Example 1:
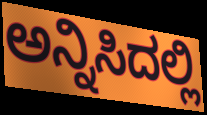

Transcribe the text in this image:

ಅನ್ನಿಸಿದಲ್ಲಿ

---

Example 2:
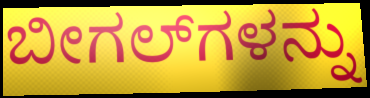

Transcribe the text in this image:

ಬೀಗಲ್‌ಗಳನ್ನು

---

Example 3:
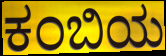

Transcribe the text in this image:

ಕಂಬಿಯ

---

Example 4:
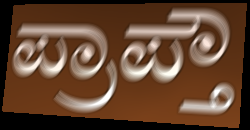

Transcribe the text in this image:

ಪ್ರಾಪ್ತೌ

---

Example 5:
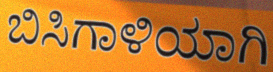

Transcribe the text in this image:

ಬಿಸಿಗಾಳಿಯಾಗಿ